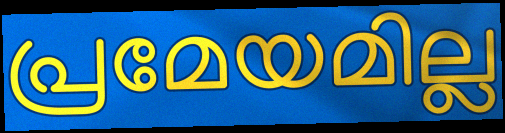
പ്രമേയമില്ല